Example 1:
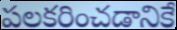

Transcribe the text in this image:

పలకరించడానికే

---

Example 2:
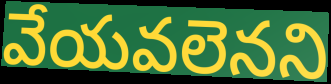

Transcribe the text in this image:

వేయవలెనని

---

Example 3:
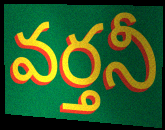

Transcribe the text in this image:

వర్తనీ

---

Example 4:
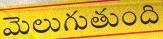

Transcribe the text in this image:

మెలుగుతుంది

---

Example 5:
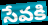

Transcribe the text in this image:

సేవకి